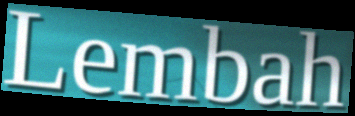
Lembah